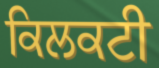
ਕਿਲਕਟੀ